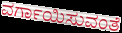
ವರ್ಗಾಯಿಸುವಂತೆ